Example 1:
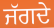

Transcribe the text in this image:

ਜੱਗਦੇ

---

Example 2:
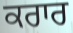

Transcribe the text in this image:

ਕਰਾਰ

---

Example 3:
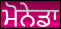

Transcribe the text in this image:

ਮੋਨੇਡਾ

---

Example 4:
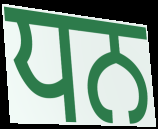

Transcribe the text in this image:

ਧਨ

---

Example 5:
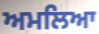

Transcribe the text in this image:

ਅਮਲਿਆ